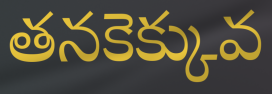
తనకెక్కువ